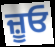
ਜ਼ੂਓ